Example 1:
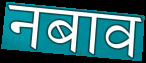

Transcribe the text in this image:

नबाव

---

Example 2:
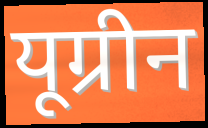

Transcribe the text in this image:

यूग्रीन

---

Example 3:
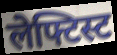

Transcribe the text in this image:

लेफ्टिस्ट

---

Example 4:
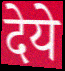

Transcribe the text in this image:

देये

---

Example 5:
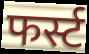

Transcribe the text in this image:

फर्स्ट